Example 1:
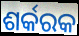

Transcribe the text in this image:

ଶର୍କରକ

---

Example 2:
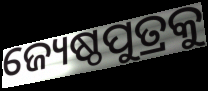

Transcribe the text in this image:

ଜ୍ୟେଷ୍ଠପୁତ୍ରକୁ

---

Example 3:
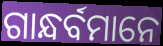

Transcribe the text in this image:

ଗାନ୍ଧର୍ବମାନେ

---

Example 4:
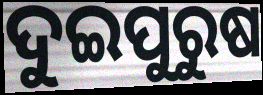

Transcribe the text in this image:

ଦୁଇପୁରୁଷ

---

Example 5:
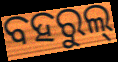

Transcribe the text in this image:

ବହରୁଲ୍